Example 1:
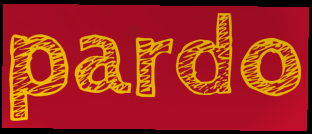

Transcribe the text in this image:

pardo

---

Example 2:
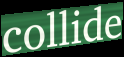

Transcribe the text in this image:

collide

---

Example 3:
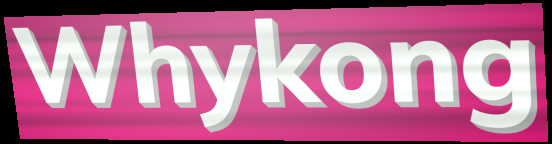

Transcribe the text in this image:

Whykong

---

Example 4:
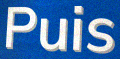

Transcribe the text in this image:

Puis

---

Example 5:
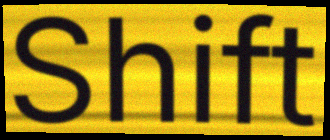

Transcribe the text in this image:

Shift